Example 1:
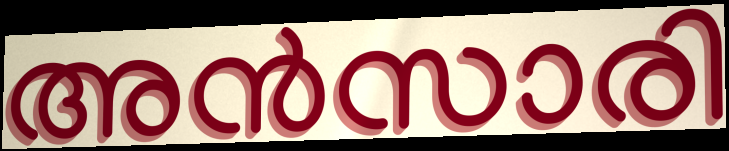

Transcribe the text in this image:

അൻസാരി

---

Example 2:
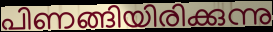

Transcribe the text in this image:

പിണങ്ങിയിരിക്കുന്നു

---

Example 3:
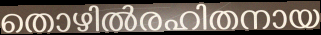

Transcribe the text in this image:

തൊഴിൽരഹിതനായ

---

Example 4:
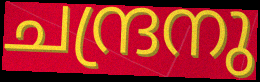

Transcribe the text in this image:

ചന്ദ്രനു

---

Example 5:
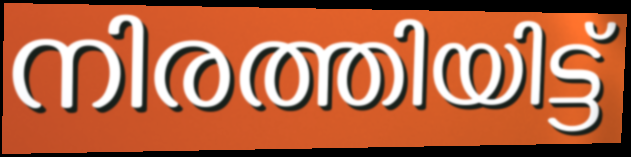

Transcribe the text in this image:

നിരത്തിയിട്ട്